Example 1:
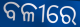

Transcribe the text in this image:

ବଳୀରେ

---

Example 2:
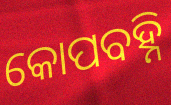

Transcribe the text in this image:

କୋପବହ୍ନି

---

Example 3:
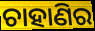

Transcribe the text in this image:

ଚାହାଣିର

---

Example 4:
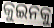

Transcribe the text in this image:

କୁଇନକୁ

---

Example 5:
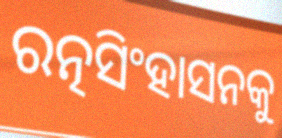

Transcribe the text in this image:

ରତ୍ନସିଂହାସନକୁ